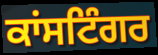
ਕਾਂਸਟਿੰਗਰ